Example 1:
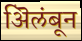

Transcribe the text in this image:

ऄिलंबून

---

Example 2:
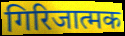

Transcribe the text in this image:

गिरिजात्मक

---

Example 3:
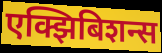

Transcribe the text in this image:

एक्झिबिशन्स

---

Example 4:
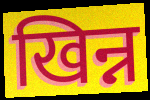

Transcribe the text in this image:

खिन्न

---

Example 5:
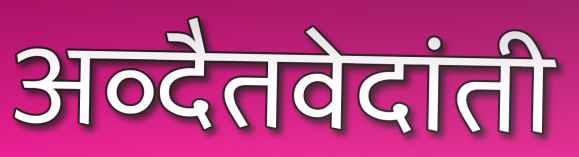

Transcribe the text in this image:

अव्दैतवेदांती